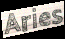
Aries